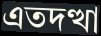
এতদত্থা